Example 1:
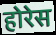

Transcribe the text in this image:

होरेस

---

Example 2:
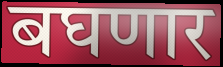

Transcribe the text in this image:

बघणार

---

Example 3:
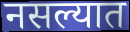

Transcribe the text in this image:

नसल्यात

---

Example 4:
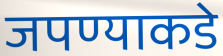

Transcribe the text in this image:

जपण्याकडे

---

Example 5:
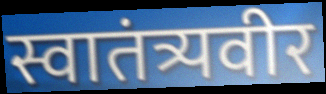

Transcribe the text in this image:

स्वातंत्र्यवीर